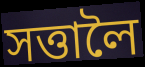
সত্তালৈ